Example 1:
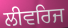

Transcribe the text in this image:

ਲੀਵਰਿਜ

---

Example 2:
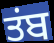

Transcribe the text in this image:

ਤਂਬ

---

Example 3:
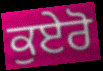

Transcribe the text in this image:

ਕੁਏਰੋ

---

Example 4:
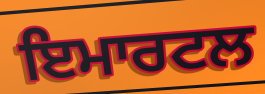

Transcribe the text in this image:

ਇਮਾਰਟਲ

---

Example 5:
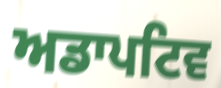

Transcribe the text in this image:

ਅਡਾਪਟਿਵ